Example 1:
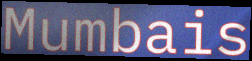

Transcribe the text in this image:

Mumbais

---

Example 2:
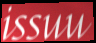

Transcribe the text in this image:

issuu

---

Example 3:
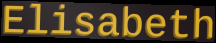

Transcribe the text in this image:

Elisabeth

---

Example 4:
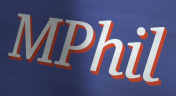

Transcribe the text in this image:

MPhil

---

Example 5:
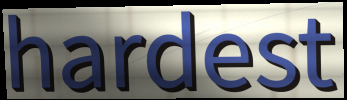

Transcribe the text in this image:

hardest